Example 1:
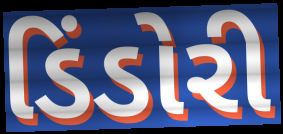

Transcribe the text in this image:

ડિંડોરી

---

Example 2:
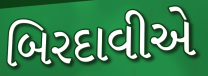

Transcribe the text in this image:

બિરદાવીએ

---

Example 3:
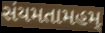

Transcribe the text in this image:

સંયમતામહમ્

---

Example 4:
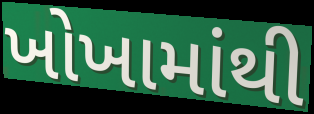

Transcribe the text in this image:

ખોખામાંથી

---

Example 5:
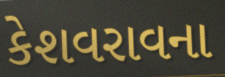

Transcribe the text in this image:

કેશવરાવના